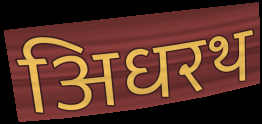
अिधरथ